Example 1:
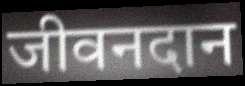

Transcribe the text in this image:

जीवनदान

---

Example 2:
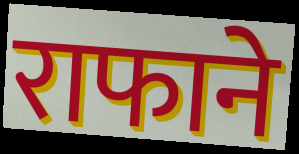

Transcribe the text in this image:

राफाने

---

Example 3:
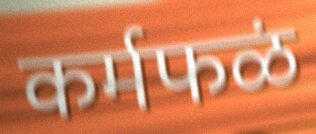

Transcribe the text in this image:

कर्मफळं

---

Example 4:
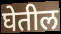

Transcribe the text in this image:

घेतील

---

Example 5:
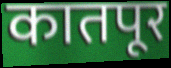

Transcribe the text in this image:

कातपूर